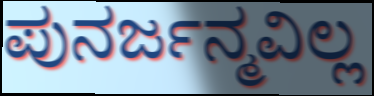
ಪುನರ್ಜನ್ಮವಿಲ್ಲ